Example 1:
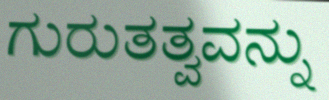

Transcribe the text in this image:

ಗುರುತತ್ವವನ್ನು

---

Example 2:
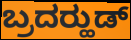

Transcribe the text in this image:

ಬ್ರದರ್‍ಹುಡ್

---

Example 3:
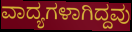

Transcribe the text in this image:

ವಾದ್ಯಗಳಾಗಿದ್ದವು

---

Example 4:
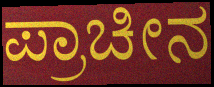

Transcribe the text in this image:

ಪ್ರಾಚೀನ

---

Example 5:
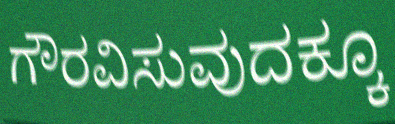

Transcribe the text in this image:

ಗೌರವಿಸುವುದಕ್ಕೂ